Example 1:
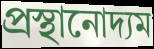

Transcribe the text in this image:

প্রস্থানোদ্যম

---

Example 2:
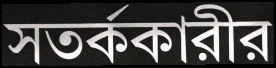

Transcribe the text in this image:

সতর্ককারীর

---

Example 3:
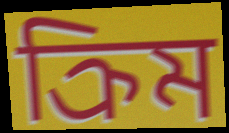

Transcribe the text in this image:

ক্রিম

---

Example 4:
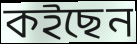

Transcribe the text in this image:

কইছেন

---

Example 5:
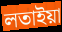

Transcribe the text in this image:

লতাইয়া